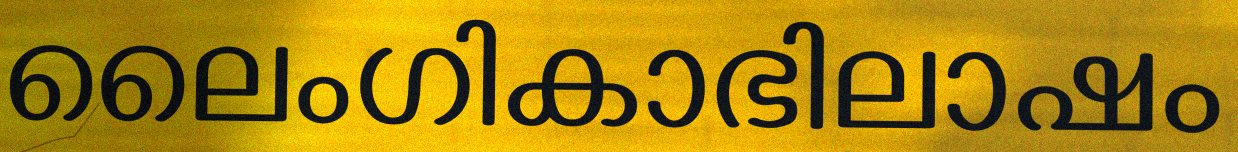
ലൈംഗികാഭിലാഷം